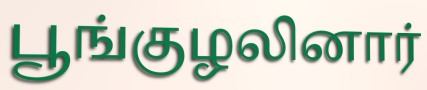
பூங்குழலினார்